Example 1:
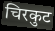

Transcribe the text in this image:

चिरकुट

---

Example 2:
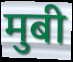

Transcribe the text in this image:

मुबी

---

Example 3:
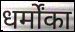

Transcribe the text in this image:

धर्मोंका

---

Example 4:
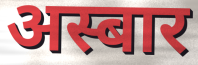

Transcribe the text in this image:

अस्बार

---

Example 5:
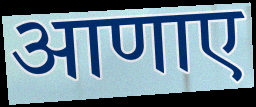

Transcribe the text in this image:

आणाए